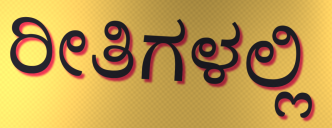
ರೀತಿಗಳಲ್ಲಿ